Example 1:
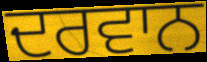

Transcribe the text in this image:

ਦਰਵਾਨ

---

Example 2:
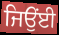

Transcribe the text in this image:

ਜਿਉਂਈ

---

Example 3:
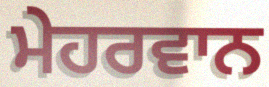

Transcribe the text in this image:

ਮੇਹਰਵਾਨ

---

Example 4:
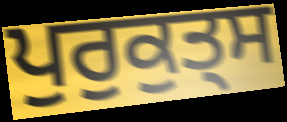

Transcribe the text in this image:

ਪੁਰੁਕੁਤ੍ਸ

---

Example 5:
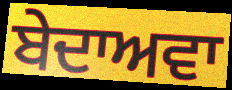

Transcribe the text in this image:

ਬੇਦਾਅਵਾ